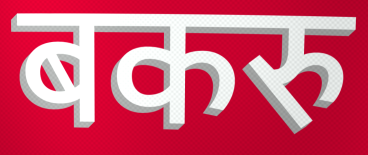
बकरु